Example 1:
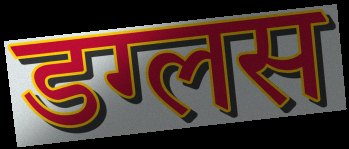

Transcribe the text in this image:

डग्लस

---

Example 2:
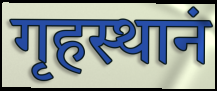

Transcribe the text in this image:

गृहस्थानं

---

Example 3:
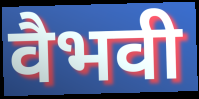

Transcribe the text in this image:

वैभवी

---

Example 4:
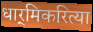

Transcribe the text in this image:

धार्मिकरित्या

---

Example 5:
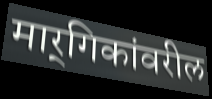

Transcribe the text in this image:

मार्गिकांवरील